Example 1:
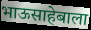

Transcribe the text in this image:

भाऊसाहेबाला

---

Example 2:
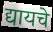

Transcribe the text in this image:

द्यायचे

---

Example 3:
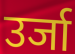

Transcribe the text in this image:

उर्जा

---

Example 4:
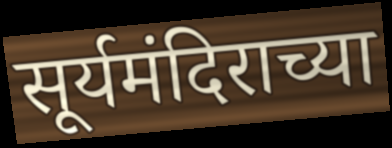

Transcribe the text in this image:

सूर्यमंदिराच्या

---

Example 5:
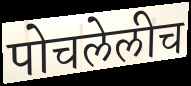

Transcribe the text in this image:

पोचलेलीच